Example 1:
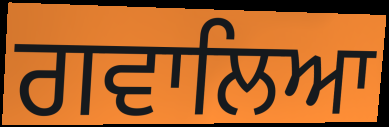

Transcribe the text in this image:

ਗਵਾਲਿਆ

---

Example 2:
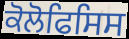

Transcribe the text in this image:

ਕੋਲੋਫਿਸਿਸ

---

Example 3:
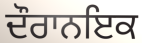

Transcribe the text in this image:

ਦੌਰਾਨਇਕ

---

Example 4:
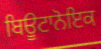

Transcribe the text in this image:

ਬਿਊਟਾਨੋਇਕ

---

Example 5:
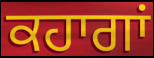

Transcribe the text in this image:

ਕਹਾਗਾਂ